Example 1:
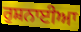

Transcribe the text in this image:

ਰੁਸ਼ਨਾਈਆ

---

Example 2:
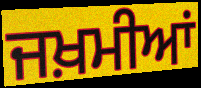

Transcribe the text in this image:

ਜਖ਼ਮੀਆਂ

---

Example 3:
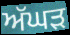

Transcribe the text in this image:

ਅੱਘੜ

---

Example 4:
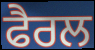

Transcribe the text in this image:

ਫੈਰਲ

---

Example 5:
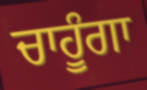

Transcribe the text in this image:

ਚਾਹੂੰਗਾ